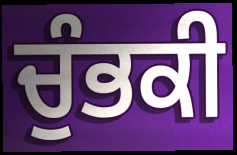
ਚੁੰਭਕੀ